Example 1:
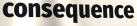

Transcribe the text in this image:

consequence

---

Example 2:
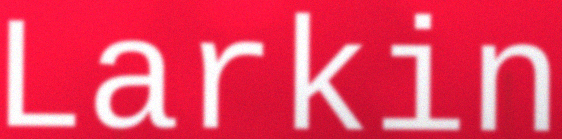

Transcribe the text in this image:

Larkin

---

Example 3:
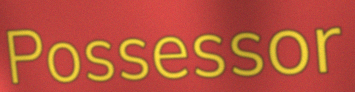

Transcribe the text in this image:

Possessor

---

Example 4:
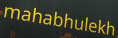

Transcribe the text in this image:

mahabhulekh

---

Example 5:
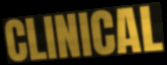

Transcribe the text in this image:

CLINICAL